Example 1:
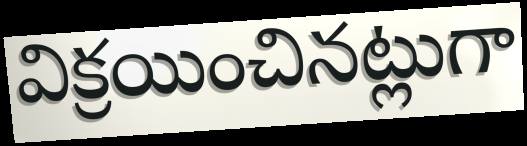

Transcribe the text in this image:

విక్రయించినట్లుగా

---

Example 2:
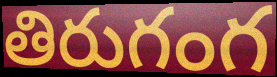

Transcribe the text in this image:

తిరుగంగ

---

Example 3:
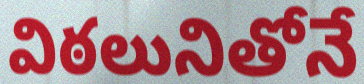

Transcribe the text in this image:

విఠలునితోనే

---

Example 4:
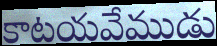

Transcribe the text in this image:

కాటయవేముడు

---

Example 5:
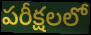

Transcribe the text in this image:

పరీక్షలలో